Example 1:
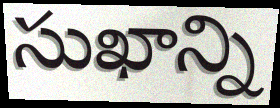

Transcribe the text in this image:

సుఖాన్ని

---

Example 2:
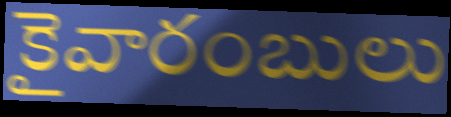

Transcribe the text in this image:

కైవారంబులు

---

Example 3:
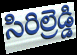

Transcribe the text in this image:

సిరిల్రెడ్డి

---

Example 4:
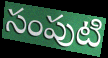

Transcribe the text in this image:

సంపుటి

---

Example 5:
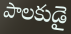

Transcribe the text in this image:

పాలకుడై